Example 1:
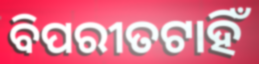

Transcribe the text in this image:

ବିପରୀତଟାହିଁ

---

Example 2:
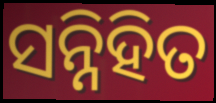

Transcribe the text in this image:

ସନ୍ନିହିତ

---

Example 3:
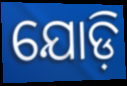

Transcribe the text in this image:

ଯୋଡ଼ି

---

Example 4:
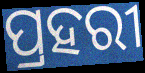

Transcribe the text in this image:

ପ୍ରହରୀ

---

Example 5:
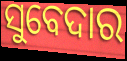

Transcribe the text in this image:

ସୁବେଦାର